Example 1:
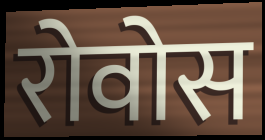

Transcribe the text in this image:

रोवोस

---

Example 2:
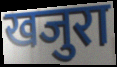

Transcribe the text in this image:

खजुरा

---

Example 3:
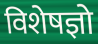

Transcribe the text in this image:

विशेषज्ञो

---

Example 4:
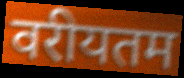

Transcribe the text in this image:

वरीयतम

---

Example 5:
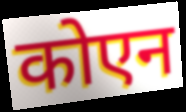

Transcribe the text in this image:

कोएन